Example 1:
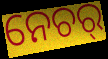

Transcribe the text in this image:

ନେଚର୍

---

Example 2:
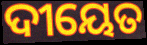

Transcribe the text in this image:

ଦୀୟେତ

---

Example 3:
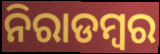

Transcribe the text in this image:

ନିରାଡମ୍ବର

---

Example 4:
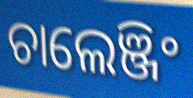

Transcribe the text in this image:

ଚାଲେଞ୍ଜିଂ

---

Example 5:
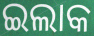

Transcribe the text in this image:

ଇଲାକ